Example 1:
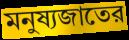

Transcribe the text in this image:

মনুষ্যজাতের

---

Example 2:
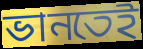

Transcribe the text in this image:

ভানতেই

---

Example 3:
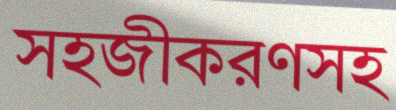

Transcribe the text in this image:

সহজীকরণসহ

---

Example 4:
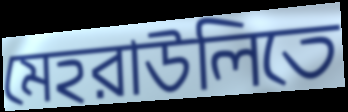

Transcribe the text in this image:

মেহরাউলিতে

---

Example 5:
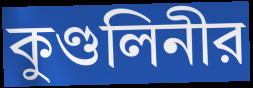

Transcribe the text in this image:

কুণ্ডলিনীর